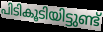
പിടികൂടിയിട്ടുണ്ട്